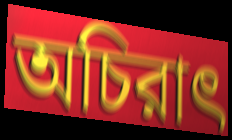
অচিরাৎ